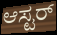
ಆಸ್ಟರ್